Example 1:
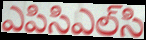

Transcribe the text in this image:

ఎపిసిఎల్‌సి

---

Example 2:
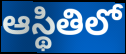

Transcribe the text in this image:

ఆస్థితిలో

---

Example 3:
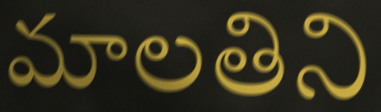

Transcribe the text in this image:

మాలతిని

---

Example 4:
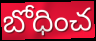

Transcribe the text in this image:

బోధించ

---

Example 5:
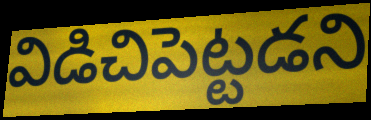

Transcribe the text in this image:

విడిచిపెట్టడని